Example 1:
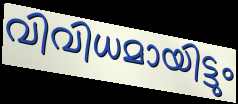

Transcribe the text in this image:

വിവിധമായിട്ടും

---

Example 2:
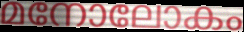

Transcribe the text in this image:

മനോലോകം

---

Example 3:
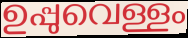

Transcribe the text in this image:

ഉപ്പുവെള്ളം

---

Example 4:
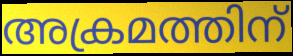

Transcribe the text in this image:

അക്രമത്തിന്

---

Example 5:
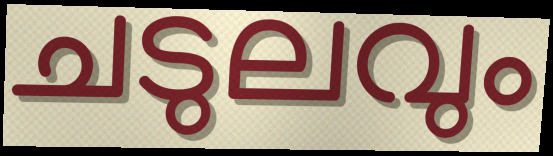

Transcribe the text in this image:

ചടുലവും